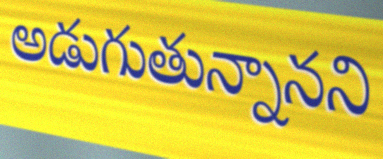
అడుగుతున్నానని